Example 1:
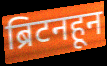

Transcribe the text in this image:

ब्रिटनहून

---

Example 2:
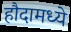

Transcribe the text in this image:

हौदामध्ये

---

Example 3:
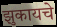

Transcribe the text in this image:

झुकायचे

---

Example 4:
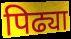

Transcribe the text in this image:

पिढ्या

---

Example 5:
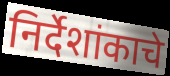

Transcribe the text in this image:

निर्देशांकाचे